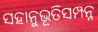
ସହାନୁଭୂତିସମ୍ପନ୍ନ